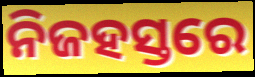
ନିଜହସ୍ତରେ